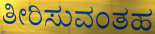
ತೀರಿಸುವಂತಹ